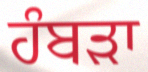
ਹੰਬਡ਼ਾ